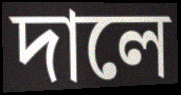
দালে